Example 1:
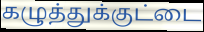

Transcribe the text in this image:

கழுத்துக்குட்டை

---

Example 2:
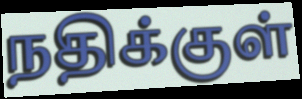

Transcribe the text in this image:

நதிக்குள்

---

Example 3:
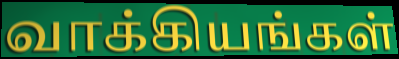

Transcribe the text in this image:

வாக்கியங்கள்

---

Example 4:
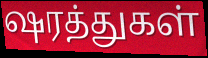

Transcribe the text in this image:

ஷரத்துகள்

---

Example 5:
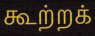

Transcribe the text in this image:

கூற்றக்